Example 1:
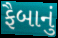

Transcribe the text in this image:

ફૈબાનું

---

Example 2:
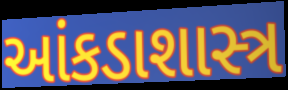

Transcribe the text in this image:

આંકડાશાસ્ત્ર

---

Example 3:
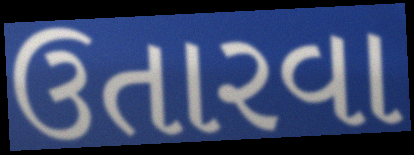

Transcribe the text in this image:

ઉતારવા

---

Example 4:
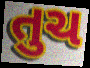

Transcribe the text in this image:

તુચ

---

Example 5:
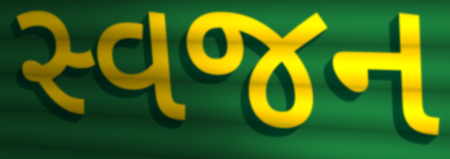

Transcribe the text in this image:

સ્વજન